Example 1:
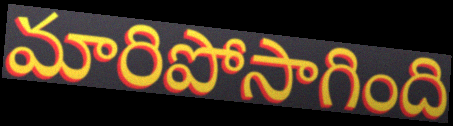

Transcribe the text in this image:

మారిపోసాగింది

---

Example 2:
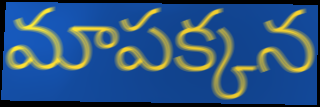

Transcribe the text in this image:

మాపక్కన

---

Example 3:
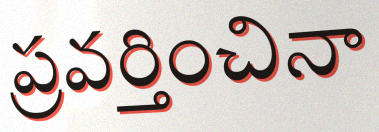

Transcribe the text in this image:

ప్రవర్తించినా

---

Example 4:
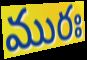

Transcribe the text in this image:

మురః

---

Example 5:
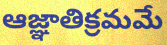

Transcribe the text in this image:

ఆజ్ఞాతిక్రమమే